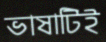
ভাষাটিই